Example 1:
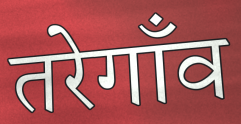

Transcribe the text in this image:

तरेगाँव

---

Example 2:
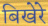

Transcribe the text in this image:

बिखेरे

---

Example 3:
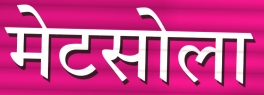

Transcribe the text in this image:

मेटसोला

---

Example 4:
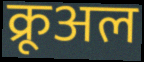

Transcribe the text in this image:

क्रूअल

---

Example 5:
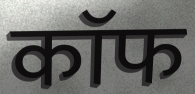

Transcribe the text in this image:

कॉफ